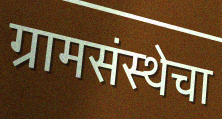
ग्रामसंस्थेचा